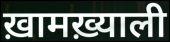
ख़ामख़्याली